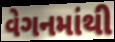
વેગનમાંથી